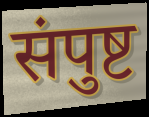
संपुष्ट